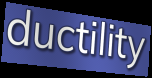
ductility